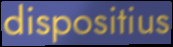
dispositius